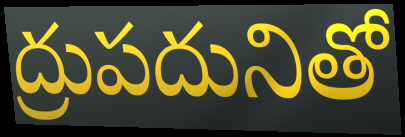
ద్రుపదునితో